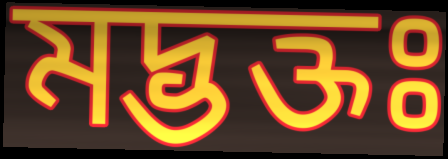
মদ্ভক্তঃ